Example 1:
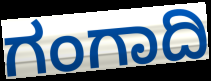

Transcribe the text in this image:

ಗಂಗಾದಿ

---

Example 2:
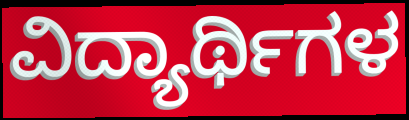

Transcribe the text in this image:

ವಿದ್ಯಾರ್ಥಿಗಳ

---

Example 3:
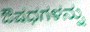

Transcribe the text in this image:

ಔಷಧಗಳನ್ನು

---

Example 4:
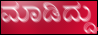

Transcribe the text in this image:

ಮಾಡಿದ್ದು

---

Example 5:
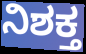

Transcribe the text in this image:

ನಿಶಕ್ತ